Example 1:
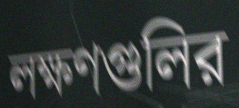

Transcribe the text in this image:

লক্ষণগুলির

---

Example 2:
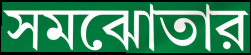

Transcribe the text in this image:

সমঝোতার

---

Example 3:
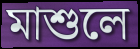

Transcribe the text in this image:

মাশুলে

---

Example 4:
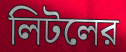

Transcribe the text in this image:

লিটলের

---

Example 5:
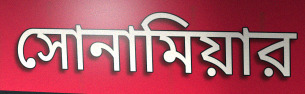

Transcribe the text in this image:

সোনামিয়ার